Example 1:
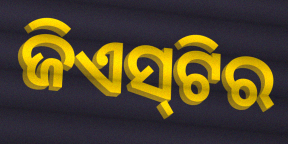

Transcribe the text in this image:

ଜିଏସ୍‌ଟିର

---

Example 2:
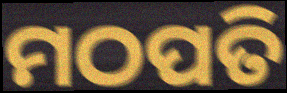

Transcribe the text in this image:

ମଠପତି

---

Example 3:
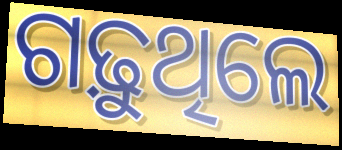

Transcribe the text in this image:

ଗଢ଼ୁଥିଲେ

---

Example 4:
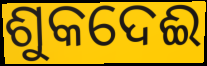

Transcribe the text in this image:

ଶୁକଦେଈ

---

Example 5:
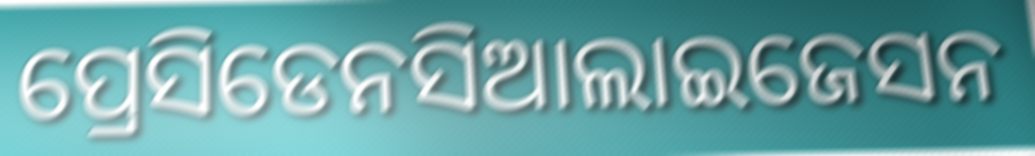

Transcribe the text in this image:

ପ୍ରେସିଡେନସିଆଲାଇଜେସନ